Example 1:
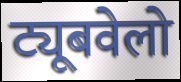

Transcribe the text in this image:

ट्यूबवेलो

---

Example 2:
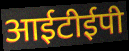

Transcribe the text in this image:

आईटीईपी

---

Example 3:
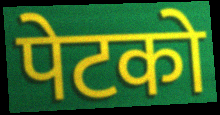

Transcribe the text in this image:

पेटको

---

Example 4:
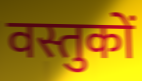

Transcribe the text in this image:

वस्तुकों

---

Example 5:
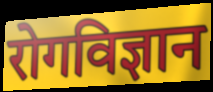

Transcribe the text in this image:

रोगविज्ञान